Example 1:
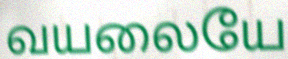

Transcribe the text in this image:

வயலையே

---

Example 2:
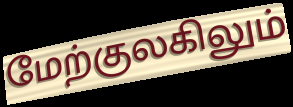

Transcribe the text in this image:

மேற்குலகிலும்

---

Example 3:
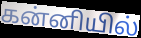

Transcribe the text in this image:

கன்னியில்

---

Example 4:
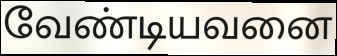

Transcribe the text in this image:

வேண்டியவனை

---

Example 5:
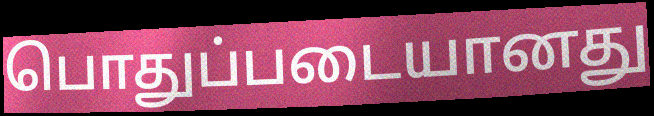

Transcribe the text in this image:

பொதுப்படையானது